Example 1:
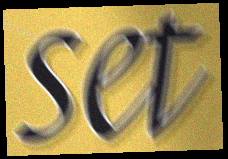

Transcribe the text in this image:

set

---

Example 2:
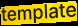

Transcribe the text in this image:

template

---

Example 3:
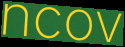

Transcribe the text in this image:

ncov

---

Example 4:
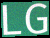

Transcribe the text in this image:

LG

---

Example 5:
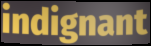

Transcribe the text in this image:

indignant